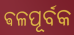
ଵଳପୂର୍ବକ